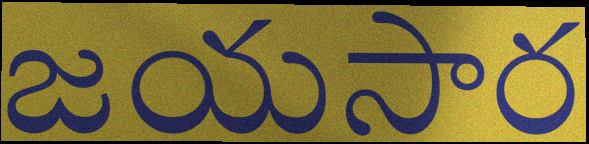
జయసార